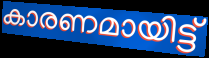
കാരണമായിട്ട്